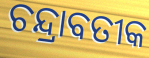
ଚନ୍ଦ୍ରାବତୀକ